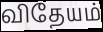
விதேயம்